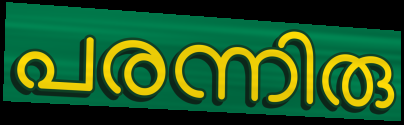
പരന്നിരു